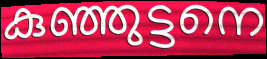
കുഞ്ഞുട്ടനെ